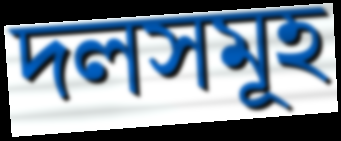
দলসমূহ